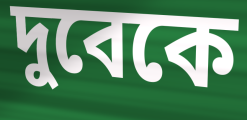
দুবেকে